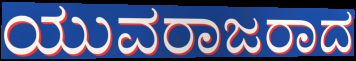
ಯುವರಾಜರಾದ